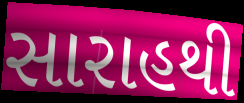
સારાહથી